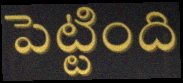
పెట్టింది